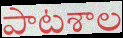
పాటశాల